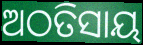
ଅଠତିସାୟ